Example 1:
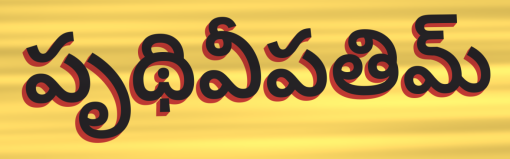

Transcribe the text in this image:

పృథివీపతిమ్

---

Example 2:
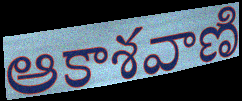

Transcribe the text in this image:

ఆకాశవాణి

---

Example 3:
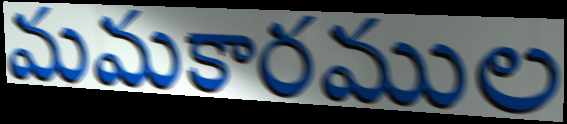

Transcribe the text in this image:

మమకారముల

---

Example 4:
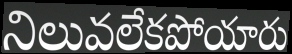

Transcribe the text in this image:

నిలువలేకపోయారు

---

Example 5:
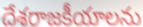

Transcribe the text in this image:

దేశరాజకీయాలను